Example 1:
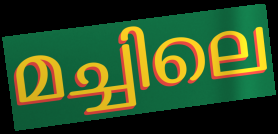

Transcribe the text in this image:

മച്ചിലെ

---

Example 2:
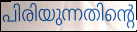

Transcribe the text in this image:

പിരിയുന്നതിന്റെ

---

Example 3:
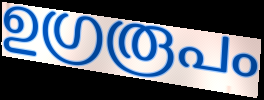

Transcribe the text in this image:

ഉഗ്രരൂപം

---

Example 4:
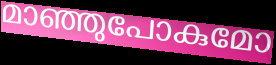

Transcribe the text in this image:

മാഞ്ഞുപോകുമോ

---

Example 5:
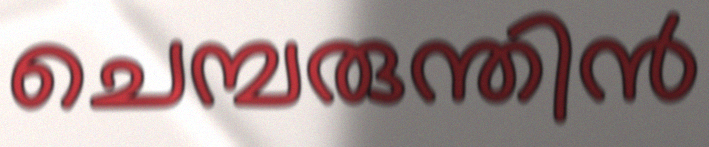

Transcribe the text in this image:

ചെമ്പരുന്തിൻ